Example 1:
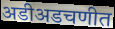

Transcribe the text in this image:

अडीअडचणीत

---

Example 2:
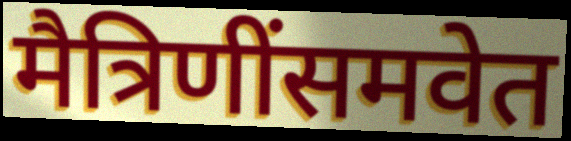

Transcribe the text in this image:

मैत्रिणींसमवेत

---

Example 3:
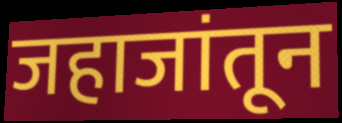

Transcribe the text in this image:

जहाजांतून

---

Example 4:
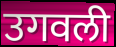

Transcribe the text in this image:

उगवली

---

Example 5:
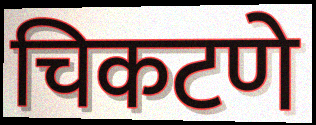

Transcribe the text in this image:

चिकटणे